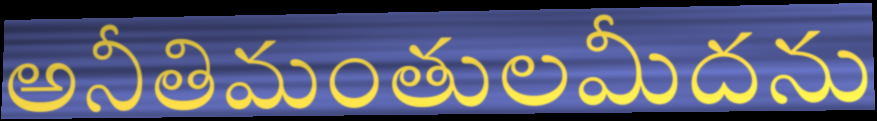
అనీతిమంతులమీదను